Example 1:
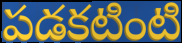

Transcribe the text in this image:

పడకటింటి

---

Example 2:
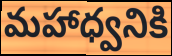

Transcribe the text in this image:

మహాధ్వనికి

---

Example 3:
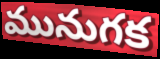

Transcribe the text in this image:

మునుగక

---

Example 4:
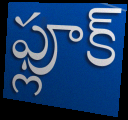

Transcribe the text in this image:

ఫ్లూక్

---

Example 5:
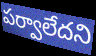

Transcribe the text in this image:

పర్వాలేదని